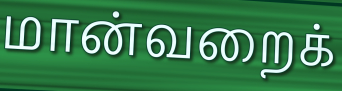
மான்வறைக்